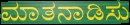
ಮಾತನಾಡಿಸು